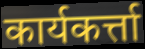
कार्यकर्त्ता